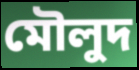
মৌলুদ